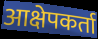
आक्षेपकर्ता